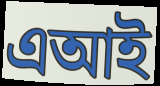
এআই